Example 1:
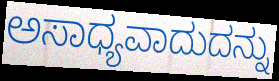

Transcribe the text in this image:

ಅಸಾಧ್ಯವಾದುದನ್ನು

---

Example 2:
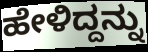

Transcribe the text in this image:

ಹೇಳಿದ್ದನ್ನು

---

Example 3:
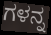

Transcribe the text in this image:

ಗಳನ್ನ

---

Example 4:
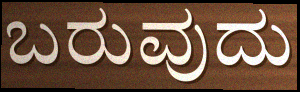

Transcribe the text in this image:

ಬರುವುದು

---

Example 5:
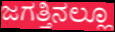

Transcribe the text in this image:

ಜಗತ್ತಿನಲ್ಲೂ